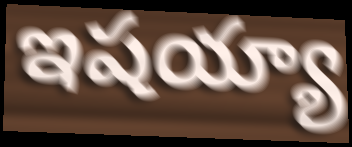
ఇషయ్యా